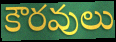
కౌరవులు